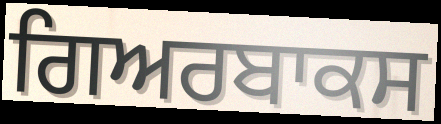
ਗਿਅਰਬਾਕਸ